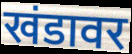
खंडावर